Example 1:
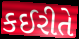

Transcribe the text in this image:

કઈરીતે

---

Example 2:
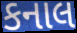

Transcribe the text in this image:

કનાલ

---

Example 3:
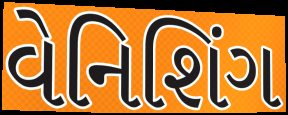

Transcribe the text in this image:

વેનિશિંગ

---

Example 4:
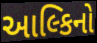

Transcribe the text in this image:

આલ્કિનો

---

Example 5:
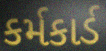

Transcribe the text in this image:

કર્મકાર્ડ